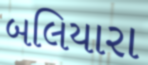
બલિયારા